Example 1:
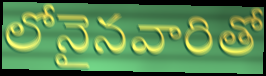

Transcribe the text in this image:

లోనైనవారితో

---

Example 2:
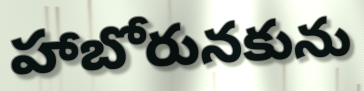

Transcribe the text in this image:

హాబోరునకును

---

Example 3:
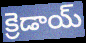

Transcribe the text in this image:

క్రెడాయ్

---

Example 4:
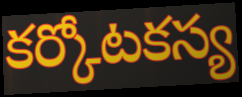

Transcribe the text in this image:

కర్కోటకస్య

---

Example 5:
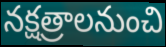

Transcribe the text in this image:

నక్షత్రాలనుంచి